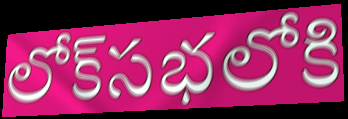
లోక్‌సభలోకి